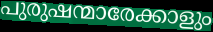
പുരുഷന്മാരേക്കാളും